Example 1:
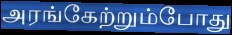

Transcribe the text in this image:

அரங்கேற்றும்போது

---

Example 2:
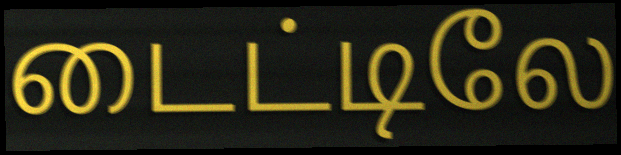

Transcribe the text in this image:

டைட்டிலே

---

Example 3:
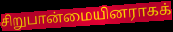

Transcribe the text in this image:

சிறுபான்மையினராகக்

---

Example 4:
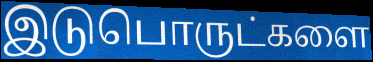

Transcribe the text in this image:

இடுபொருட்களை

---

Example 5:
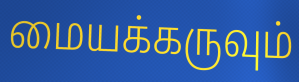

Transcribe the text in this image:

மையக்கருவும்